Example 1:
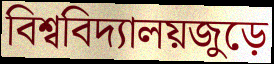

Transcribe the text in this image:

বিশ্ববিদ্যালয়জুড়ে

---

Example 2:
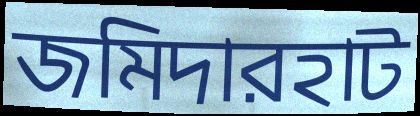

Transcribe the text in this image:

জমিদারহাট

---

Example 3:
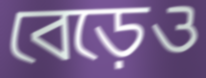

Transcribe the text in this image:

বেড়েও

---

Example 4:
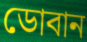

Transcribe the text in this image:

ডোবান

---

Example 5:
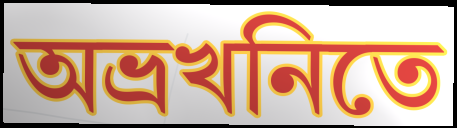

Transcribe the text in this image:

অভ্রখনিতে